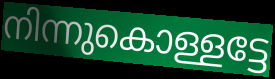
നിന്നുകൊള്ളട്ടേ